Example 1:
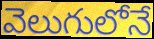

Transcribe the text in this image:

వెలుగులోనే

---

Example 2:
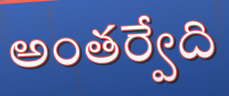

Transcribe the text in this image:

అంతర్వేది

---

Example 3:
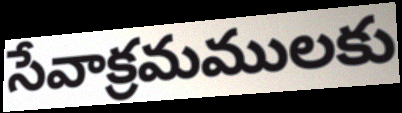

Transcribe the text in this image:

సేవాక్రమములకు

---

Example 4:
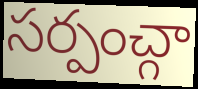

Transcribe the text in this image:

సర్పంచ్గా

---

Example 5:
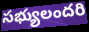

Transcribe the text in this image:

సభ్యులందరి